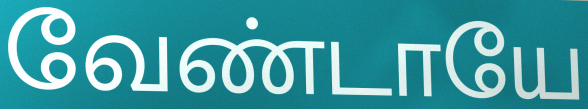
வேண்டாயே